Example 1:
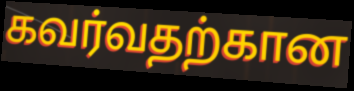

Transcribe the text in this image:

கவர்வதற்கான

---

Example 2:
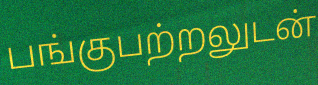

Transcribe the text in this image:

பங்குபற்றலுடன்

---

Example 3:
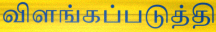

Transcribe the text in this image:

விளங்கப்படுத்தி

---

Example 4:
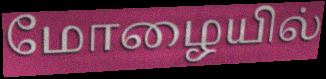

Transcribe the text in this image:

மோழையில்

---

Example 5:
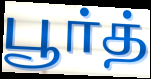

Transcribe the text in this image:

பூர்த்